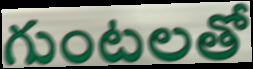
గుంటలతో